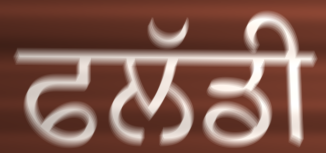
ਫਲੱਡੀ